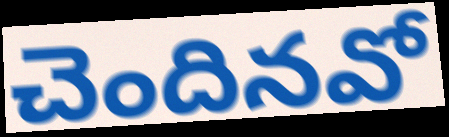
చెందినవో